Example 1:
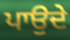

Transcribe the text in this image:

ਪਾਉਦੇ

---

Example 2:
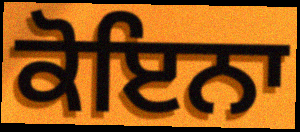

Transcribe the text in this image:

ਕੋਇਨਾ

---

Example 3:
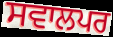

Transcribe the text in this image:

ਸਵਾਲਪਰ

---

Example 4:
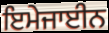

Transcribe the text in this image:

ਇਮੇਜਾਈਨ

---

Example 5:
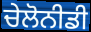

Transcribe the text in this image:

ਚੇਲੋਨੀਡੀ